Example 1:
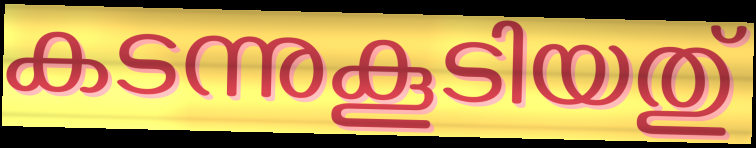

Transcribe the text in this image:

കടന്നുകൂടിയതു്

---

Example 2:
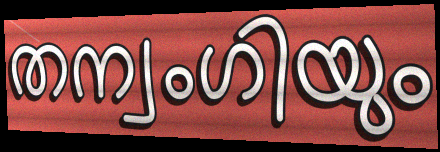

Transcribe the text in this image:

തന്വംഗിയും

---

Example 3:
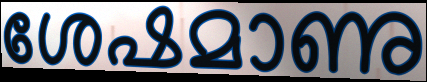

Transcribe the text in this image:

ശേഷമാണു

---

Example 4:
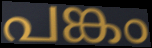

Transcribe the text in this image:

പങ്കം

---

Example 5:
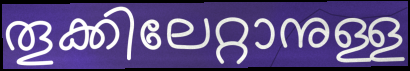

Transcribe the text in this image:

തൂക്കിലേറ്റാനുള്ള